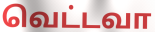
வெட்டவா